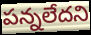
పన్నలేదని